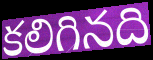
కలిగినది